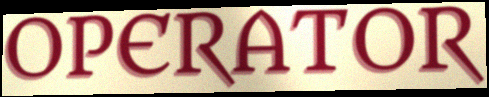
OPERATOR